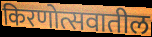
किरणोत्सवातील